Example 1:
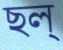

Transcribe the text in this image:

ছল্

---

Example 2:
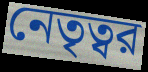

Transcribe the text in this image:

নেতৃত্বর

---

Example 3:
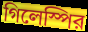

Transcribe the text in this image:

গিলেস্পির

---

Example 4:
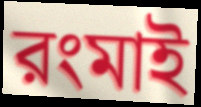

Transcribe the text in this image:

রংমাই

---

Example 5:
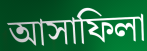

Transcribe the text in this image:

আসাফিলা